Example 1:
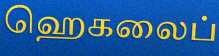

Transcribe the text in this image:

ஹெகலைப்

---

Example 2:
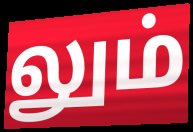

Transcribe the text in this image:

லும்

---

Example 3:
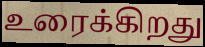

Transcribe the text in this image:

உரைக்கிறது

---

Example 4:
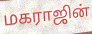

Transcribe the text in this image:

மகராஜின்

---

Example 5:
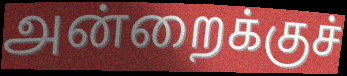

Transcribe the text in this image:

அன்றைக்குச்